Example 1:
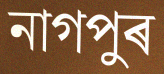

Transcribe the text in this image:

নাগপুৰ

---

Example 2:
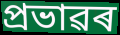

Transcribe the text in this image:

প্ৰভাৱৰ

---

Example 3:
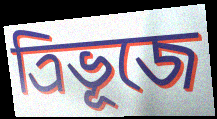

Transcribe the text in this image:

ত্ৰিভূজে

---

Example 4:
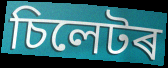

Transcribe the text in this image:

চিলেটৰ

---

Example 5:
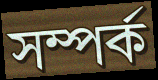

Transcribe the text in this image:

সম্পৰ্ক